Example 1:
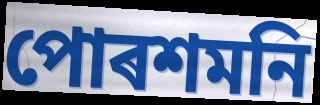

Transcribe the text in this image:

পোৰশমনি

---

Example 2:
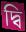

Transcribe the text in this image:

দ্বি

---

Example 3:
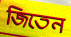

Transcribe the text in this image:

জিতেন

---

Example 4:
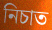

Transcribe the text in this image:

নিচাত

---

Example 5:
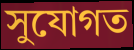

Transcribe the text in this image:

সুযোগত